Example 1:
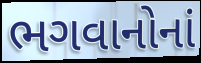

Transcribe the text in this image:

ભગવાનોનાં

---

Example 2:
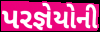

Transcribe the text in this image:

પરજ્ઞેયોની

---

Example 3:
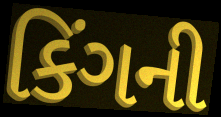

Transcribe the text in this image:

કિંગની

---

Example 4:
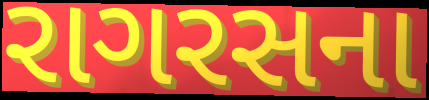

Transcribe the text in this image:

રાગરસના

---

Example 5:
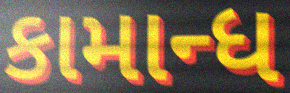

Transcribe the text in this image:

કામાન્ધ